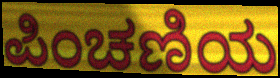
ಪಿಂಚಣಿಯ